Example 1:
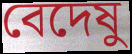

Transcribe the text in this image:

বেদেষু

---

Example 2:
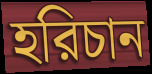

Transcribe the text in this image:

হরিচান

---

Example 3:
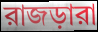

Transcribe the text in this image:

রাজড়ারা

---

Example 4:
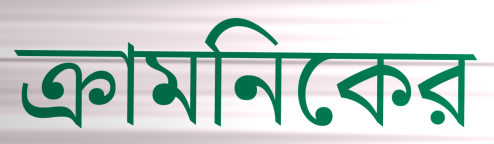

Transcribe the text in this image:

ক্রামনিকের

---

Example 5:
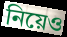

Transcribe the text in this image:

নিয়েও